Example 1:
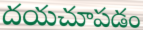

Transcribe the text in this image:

దయచూపడం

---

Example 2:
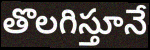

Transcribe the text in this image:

తొలగిస్తూనే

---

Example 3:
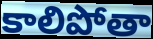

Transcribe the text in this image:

కాలిపోతా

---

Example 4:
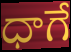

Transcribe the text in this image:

ధాగే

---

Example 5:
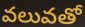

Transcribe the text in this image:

వలువతో